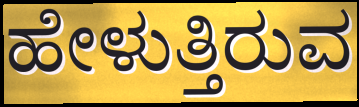
ಹೇಳುತ್ತಿರುವ